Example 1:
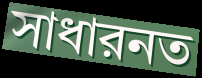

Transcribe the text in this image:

সাধারনত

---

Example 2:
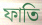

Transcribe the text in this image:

ফাতি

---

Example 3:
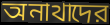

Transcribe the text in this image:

অনাথাদের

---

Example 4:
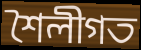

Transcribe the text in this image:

শৈলীগত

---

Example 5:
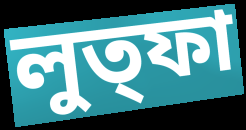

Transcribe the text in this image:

লুত্ফা